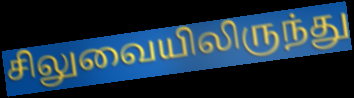
சிலுவையிலிருந்து